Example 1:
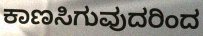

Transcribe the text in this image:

ಕಾಣಸಿಗುವುದರಿಂದ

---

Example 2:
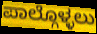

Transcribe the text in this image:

ಪಾಲ್ಗೊಳ್ಳಲು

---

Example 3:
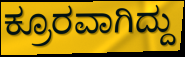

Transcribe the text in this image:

ಕ್ರೂರವಾಗಿದ್ದು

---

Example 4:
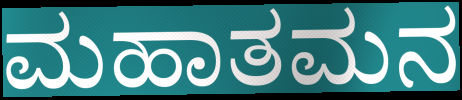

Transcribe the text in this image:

ಮಹಾತಮನ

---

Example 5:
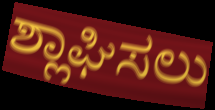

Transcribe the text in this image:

ಶ್ಲಾಘಿಸಲು